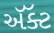
ઍૅક્ટ